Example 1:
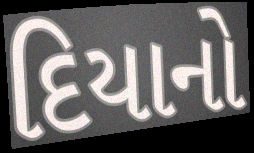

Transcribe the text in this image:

દિયાનો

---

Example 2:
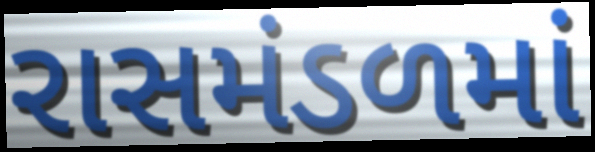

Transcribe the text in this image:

રાસમંડળમાં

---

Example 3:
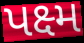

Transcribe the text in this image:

પક્ષ્મ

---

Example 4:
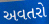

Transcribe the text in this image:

અવતરો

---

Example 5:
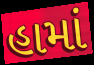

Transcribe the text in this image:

હામાં